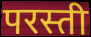
परस्ती